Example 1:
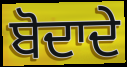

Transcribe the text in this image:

ਬੋਦਾਦੇ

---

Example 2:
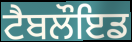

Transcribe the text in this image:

ਟੈਬਲੌਇਡ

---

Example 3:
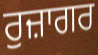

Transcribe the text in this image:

ਰੁਜ਼ਾਗਰ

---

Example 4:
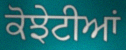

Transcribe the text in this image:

ਕੋਝੇਟੀਆਂ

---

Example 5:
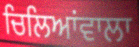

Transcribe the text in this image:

ਚਿਲਿਆਂਵਾਲਾ